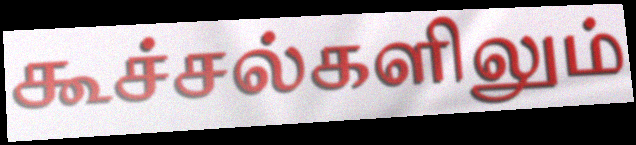
கூச்சல்களிலும்